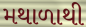
મથાળાથી